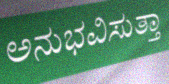
ಅನುಭವಿಸುತ್ತಾ